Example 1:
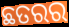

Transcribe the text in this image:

ଛତରର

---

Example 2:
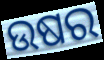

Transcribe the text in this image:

ଉଷର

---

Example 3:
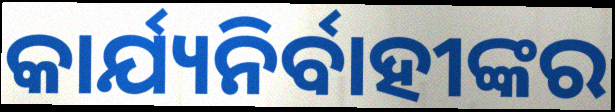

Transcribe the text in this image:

କାର୍ଯ୍ୟନିର୍ବାହୀଙ୍କର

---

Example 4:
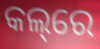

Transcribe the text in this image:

କଲ୍‌ରେ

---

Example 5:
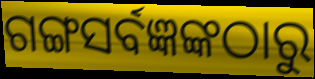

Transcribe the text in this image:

ଗଙ୍ଗସର୍ବଜ୍ଞଙ୍କଠାରୁ